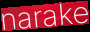
narake